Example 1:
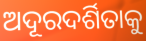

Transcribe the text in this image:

ଅଦୂରଦର୍ଶିତାକୁ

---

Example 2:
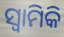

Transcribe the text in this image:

ସ୍ୱାମିକି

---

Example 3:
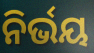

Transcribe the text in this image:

ନିର୍ଭୟ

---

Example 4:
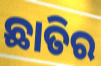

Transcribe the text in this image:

ଛାତିର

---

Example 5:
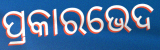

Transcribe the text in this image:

ପ୍ରକାରଭେଦ